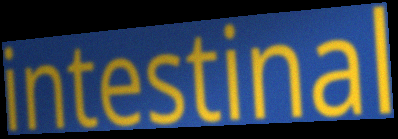
intestinal